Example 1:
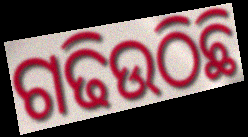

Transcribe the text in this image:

ଗଢିଉଠିଛି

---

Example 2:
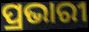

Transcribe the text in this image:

ପ୍ରଭାରୀ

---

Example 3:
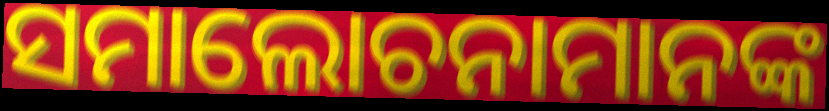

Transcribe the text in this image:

ସମାଲୋଚନାମାନଙ୍କ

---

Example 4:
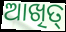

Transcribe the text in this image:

ଆଖିତ୍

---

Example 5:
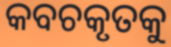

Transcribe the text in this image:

କବଚକୃତକୁ